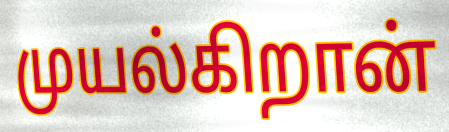
முயல்கிறான்